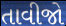
તાવીજો